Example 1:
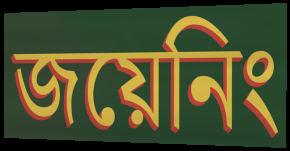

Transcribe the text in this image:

জয়েনিং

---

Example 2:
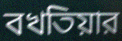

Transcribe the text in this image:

বখতিয়ার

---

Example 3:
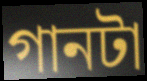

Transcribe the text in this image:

গানটা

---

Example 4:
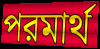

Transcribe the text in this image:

পরমার্থ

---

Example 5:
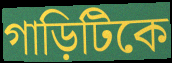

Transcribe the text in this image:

গাড়িটিকে